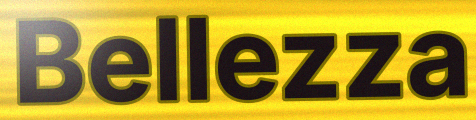
Bellezza